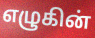
எழுகின்